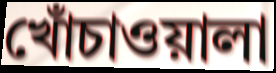
খোঁচাওয়ালা